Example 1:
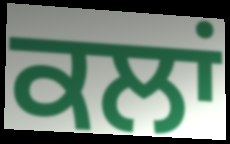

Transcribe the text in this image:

ਕਲਾਂ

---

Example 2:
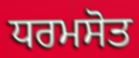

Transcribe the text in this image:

ਧਰਮਸੋਤ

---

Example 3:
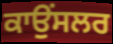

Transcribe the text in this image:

ਕਾਉਂਸਲਰ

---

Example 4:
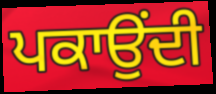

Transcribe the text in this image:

ਪਕਾਉਂਦੀ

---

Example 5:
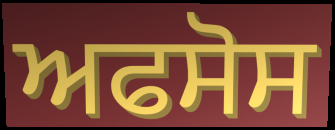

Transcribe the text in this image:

ਅਫਸੋਸ